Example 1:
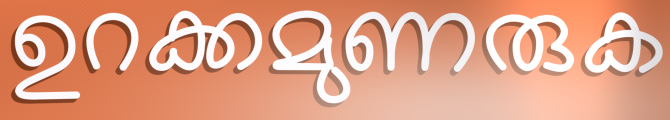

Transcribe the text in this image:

ഉറക്കമുണരുക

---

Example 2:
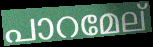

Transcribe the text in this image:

പാറമേല്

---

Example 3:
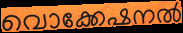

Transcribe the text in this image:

വൊക്കേഷനൽ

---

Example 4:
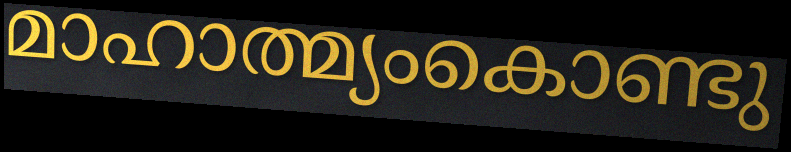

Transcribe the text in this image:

മാഹാത്മ്യംകൊണ്ടു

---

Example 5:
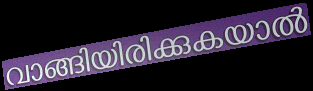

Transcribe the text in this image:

വാങ്ങിയിരിക്കുകയാൽ